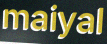
maiyal